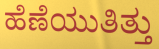
ಹೆಣೆಯುತಿತ್ತು